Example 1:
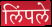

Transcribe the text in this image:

लिंपले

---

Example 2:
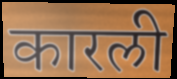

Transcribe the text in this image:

कारली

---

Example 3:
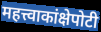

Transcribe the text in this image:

महत्त्वाकांक्षेपोटी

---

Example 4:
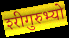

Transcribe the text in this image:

श्रीगुरुभ्यो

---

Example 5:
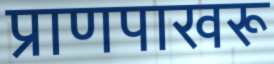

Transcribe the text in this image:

प्राणपाखरू